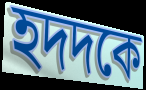
হদদকে